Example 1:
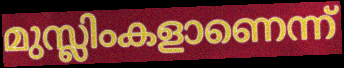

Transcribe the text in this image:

മുസ്ലിംകളാണെന്ന്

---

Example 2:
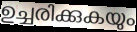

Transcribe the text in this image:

ഉച്ചരിക്കുകയും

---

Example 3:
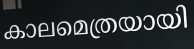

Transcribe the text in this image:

കാലമെത്രയായി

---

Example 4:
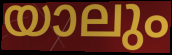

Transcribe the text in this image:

യാലും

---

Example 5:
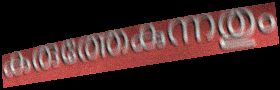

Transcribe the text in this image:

കരുത്തേകുന്നതും